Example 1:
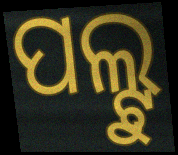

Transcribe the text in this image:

ପଲ୍ଟୁ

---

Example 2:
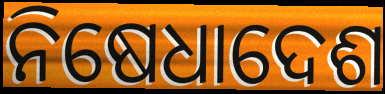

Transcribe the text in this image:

ନିଷେଧାଦେଶ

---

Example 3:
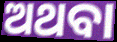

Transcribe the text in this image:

ଅଥବା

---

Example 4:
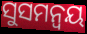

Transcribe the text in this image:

ସୁସମନ୍ଵୟ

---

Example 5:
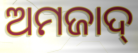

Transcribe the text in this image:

ଅମଜାଦ୍